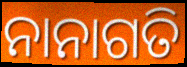
ନାନାଗତି